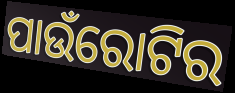
ପାଉଁରୋଟିର